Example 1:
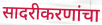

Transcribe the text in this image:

सादरीकरणांचा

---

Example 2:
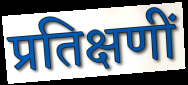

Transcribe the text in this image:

प्रतिक्षणीं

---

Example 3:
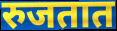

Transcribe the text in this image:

रुजतात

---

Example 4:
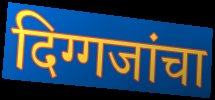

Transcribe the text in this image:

दिग्गजांचा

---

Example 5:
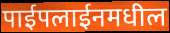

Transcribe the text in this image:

पाईपलाईनमधील